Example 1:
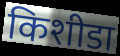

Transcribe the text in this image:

किशीडा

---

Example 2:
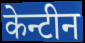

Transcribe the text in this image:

केन्टीन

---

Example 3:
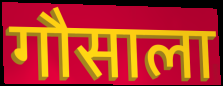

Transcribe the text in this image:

गौसाला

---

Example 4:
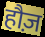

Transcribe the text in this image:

हौज़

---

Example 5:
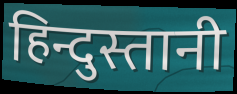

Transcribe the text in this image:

हिन्‍दुस्‍तानी